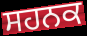
ਸਹਨਕ